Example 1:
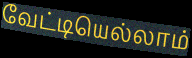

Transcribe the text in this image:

வேட்டியெல்லாம்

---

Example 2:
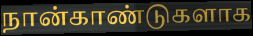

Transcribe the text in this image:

நான்காண்டுகளாக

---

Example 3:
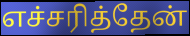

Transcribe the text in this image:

எச்சரித்தேன்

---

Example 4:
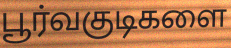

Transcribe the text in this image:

பூர்வகுடிகளை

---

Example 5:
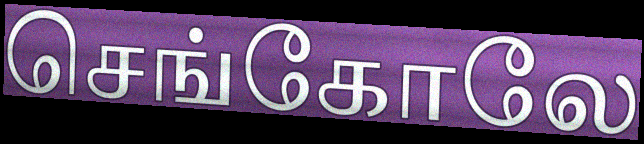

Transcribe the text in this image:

செங்கோலே